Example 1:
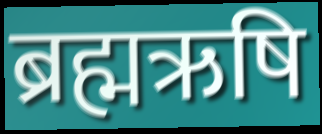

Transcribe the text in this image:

ब्रह्मऋषि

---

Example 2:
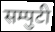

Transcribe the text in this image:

सम्पुटी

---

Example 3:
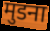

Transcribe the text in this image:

मुडना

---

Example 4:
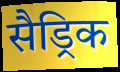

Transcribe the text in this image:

सैड्रिक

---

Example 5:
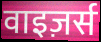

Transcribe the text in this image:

वाइज़र्स